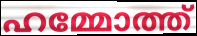
ഹമ്മോത്ത്